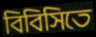
বিবিসিতে